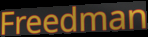
Freedman